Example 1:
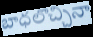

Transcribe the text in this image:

బాధలొచ్చినా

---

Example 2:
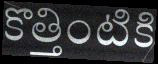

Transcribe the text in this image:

కొత్తింటికి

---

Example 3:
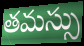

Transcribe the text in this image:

తమస్సు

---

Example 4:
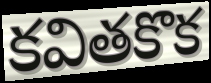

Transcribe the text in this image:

కవితకొక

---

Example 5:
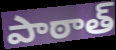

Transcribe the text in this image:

పాఠాత్